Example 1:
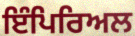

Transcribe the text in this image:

ਇੰਪਿਰਿਅਲ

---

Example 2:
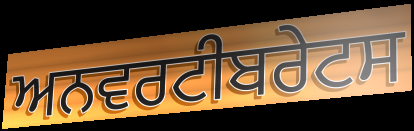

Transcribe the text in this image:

ਅਨਵਰਟੀਬਰੇਟਸ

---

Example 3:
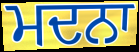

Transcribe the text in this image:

ਮਦਨਾ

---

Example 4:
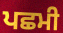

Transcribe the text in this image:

ਪਛਮੀ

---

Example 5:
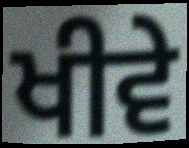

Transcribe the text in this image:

ਖੀਵੇ